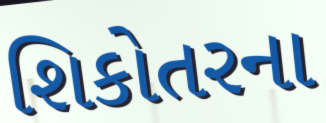
શિકોતરના